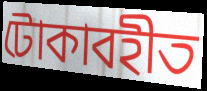
টোকাবহীত